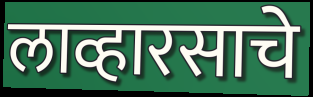
लाव्हारसाचे